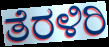
ತೆರಳಿರಿ